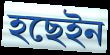
হছেইন